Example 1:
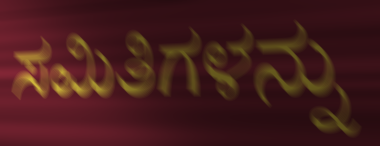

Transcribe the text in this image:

ಸಮಿತಿಗಳನ್ನು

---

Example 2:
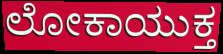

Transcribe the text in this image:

ಲೋಕಾಯುಕ್ತ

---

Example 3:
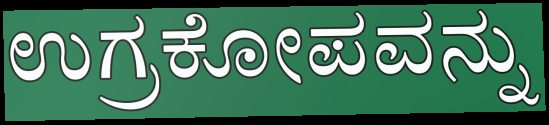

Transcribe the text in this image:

ಉಗ್ರಕೋಪವನ್ನು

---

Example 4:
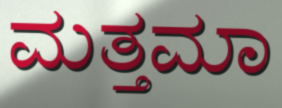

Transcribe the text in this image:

ಮತ್ತಮಾ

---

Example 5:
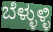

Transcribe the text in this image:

ಬೆಳ್ಳುಳ್ಳಿ